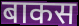
बाकस